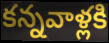
కన్నవాళ్లకి